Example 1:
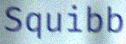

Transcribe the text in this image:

Squibb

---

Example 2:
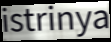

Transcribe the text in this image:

istrinya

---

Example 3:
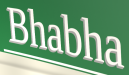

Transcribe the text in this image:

Bhabha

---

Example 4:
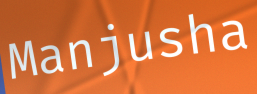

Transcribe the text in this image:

Manjusha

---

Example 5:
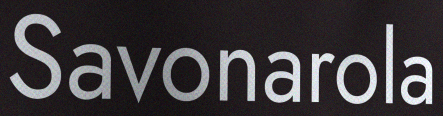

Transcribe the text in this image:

Savonarola